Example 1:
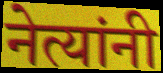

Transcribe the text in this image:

नेत्यांनी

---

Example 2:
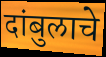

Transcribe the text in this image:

दांबुलाचे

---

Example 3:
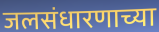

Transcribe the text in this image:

जलसंधारणाच्या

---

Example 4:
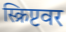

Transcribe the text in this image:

स्क्रिप्टवर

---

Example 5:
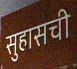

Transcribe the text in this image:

सुहासची